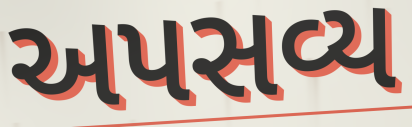
અપસવ્ય